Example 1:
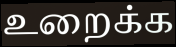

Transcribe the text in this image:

உறைக்க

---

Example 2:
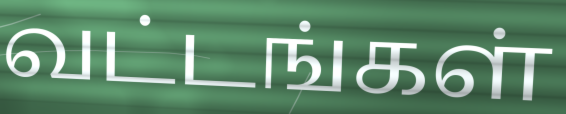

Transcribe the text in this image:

வட்டங்கள்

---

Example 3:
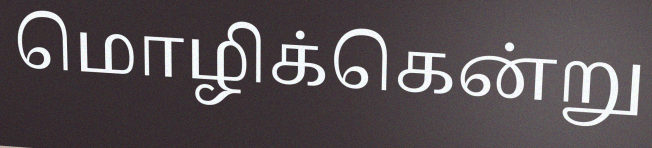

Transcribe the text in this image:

மொழிக்கென்று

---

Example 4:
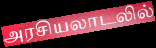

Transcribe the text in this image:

அரசியலாடலில்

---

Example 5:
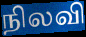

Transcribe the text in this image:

நிலவி